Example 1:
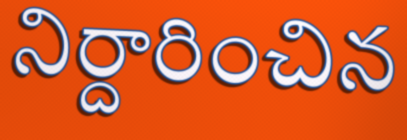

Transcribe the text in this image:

నిర్దారించిన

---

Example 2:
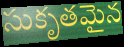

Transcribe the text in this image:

సుకృతమైన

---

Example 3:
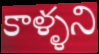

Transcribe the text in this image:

కాళ్ళని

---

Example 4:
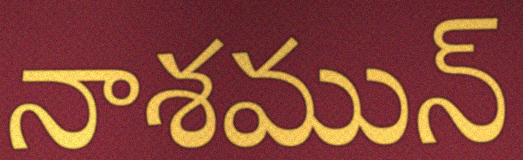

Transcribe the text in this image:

నాశమున్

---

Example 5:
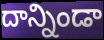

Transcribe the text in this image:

దాన్నిండా